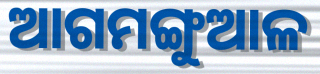
ଆଗମଙ୍ଗୁଆଳ